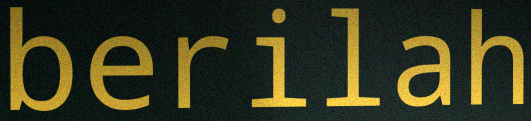
berilah